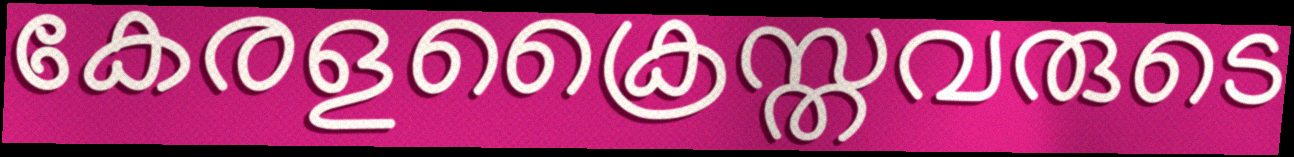
കേരളക്രൈസ്തവരുടെ